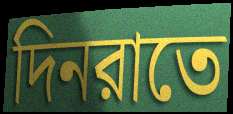
দিনরাতে